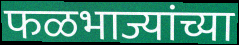
फळभाज्यांच्या